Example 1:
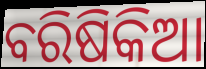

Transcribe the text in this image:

ବରିଷିକିଆ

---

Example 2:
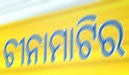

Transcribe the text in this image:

ଚୀନାମାଟିର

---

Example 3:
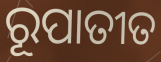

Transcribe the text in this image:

ରୂପାତୀତ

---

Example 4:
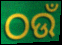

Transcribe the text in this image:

ଠଉଁ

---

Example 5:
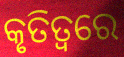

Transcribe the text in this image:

କୃତିତ୍ୱରେ